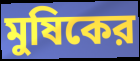
মুষিকের